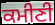
ਕਮੀਣੀ